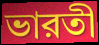
ভারতী